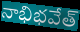
నాభిభవేత్